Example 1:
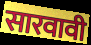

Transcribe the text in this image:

सारवावी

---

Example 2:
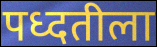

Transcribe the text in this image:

पध्दतीला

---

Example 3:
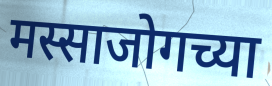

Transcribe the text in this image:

मस्साजोगच्या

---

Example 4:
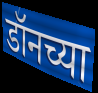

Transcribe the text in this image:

डॉनच्या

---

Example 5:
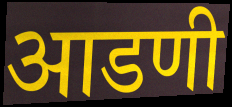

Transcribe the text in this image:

आडणी